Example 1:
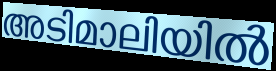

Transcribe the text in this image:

അടിമാലിയിൽ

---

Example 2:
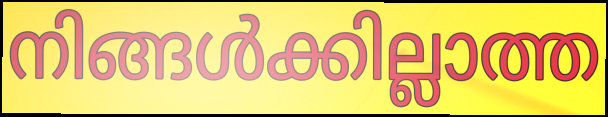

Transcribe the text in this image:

നിങ്ങൾക്കില്ലാത്ത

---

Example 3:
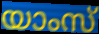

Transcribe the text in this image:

യാംസ്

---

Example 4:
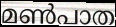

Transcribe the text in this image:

മൺപാത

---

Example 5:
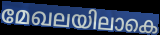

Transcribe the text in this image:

മേഖലയിലാകെ